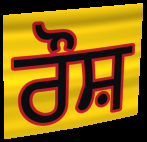
ਰੌਸ਼